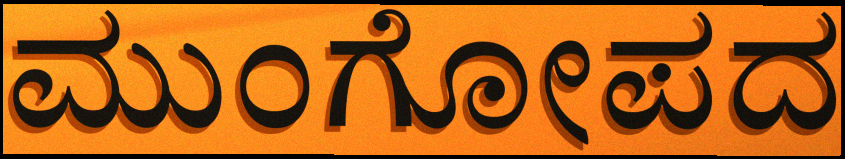
ಮುಂಗೋಪದ